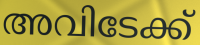
അവിടേക്ക്